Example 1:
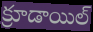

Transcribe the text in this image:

క్రూడాయిల్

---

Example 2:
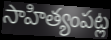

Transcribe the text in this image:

సాహిత్యంపట్ల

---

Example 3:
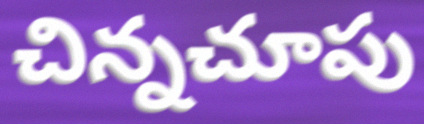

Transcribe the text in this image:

చిన్నచూపు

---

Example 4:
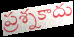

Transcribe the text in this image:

ప్రశ్నకాదు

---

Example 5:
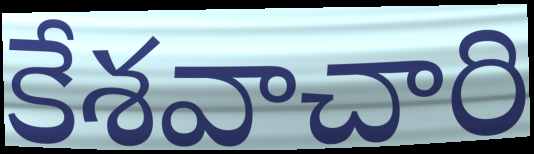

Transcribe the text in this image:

కేశవాచారి